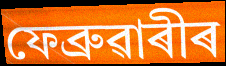
ফেব্ৰুৱাৰীৰ